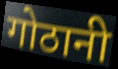
गोठानी